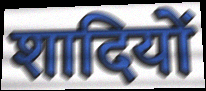
शादियों